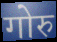
गोरु